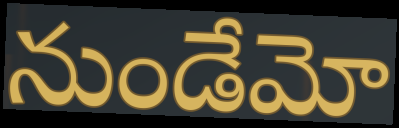
నుండేమో